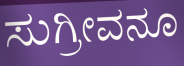
ಸುಗ್ರೀವನೂ